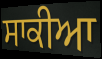
ਸਾਕੀਆ